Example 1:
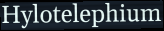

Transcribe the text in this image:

Hylotelephium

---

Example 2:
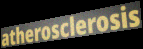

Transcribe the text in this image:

atherosclerosis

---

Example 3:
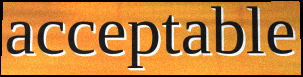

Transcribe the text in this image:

acceptable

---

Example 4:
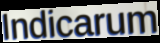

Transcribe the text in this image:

Indicarum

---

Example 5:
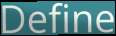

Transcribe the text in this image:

Define